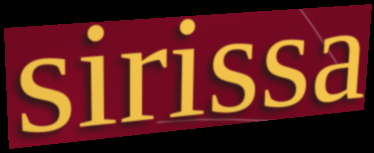
sirissa